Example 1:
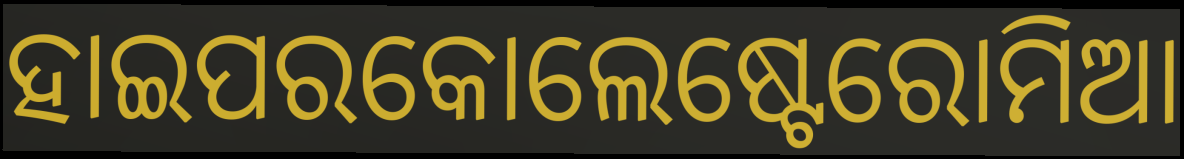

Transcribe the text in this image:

ହାଇପରକୋଲେଷ୍ଟେରୋମିଆ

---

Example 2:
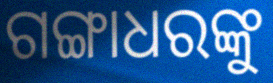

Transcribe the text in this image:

ଗଙ୍ଗାଧରଙ୍କୁ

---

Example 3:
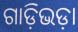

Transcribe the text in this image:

ଗାଡ଼ିଭଡ଼ା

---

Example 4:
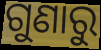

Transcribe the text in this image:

ଗୁଣାରୁ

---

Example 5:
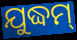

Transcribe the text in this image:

ଯୁଦ୍ଧମ୍